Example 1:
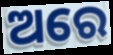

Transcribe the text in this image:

ଅରେ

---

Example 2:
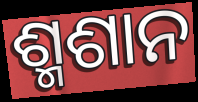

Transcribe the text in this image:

ଶ୍ମଶାନ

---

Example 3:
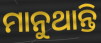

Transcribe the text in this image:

ମାନୁଥାନ୍ତି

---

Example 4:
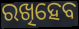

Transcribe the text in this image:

ରଖିହେବ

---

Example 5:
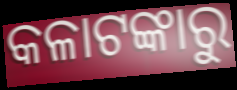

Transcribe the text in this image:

କଳାଟଙ୍କାରୁ